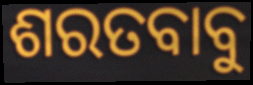
ଶରତବାବୁ